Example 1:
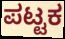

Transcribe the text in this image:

ಪಟ್ಟಕ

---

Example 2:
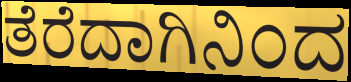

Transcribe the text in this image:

ತೆರೆದಾಗಿನಿಂದ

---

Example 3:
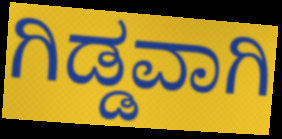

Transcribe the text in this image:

ಗಿಡ್ಡವಾಗಿ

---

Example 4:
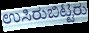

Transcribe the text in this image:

ಉಸಿರುಬಿಟ್ಟರು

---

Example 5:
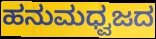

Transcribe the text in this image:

ಹನುಮಧ್ವಜದ